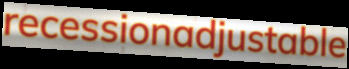
recessionadjustable